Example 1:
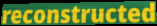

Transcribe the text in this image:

reconstructed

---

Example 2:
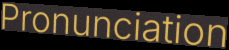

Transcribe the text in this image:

Pronunciation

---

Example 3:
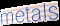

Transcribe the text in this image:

metals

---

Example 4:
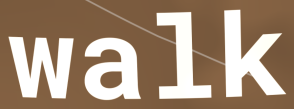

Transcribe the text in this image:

walk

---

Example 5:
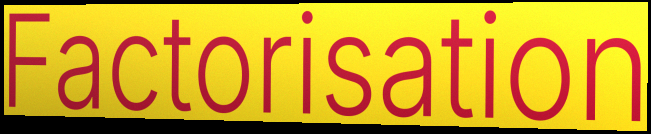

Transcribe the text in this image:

Factorisation